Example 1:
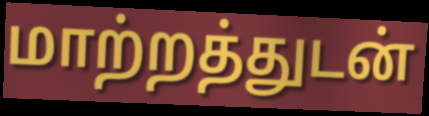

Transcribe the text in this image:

மாற்றத்துடன்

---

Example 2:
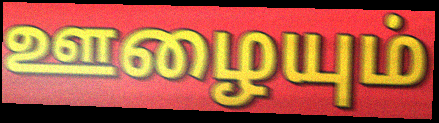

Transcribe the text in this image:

ஊழையும்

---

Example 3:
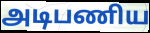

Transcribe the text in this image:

அடிபணிய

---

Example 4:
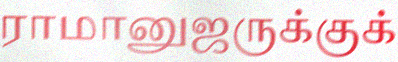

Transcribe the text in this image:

ராமானுஜருக்குக்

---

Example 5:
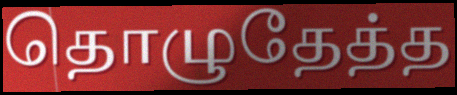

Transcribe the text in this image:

தொழுதேத்த